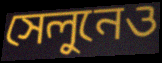
সেলুনেও